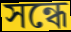
সন্ধে